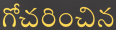
గోచరించిన